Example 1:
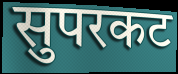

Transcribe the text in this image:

सुपरकट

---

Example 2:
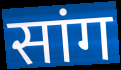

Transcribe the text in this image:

सांग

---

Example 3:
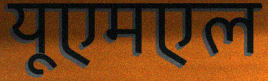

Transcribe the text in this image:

यूएमएल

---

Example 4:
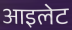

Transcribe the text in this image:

आइलेट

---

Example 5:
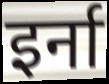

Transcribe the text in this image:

इर्ना